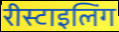
रीस्टाइलिंग